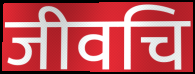
जीवचि